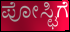
ಪೋಸ್ಟಿಗೆ